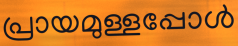
പ്രായമുള്ളപ്പോൾ